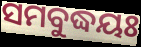
ସମବୁଦ୍ଧୟଃ